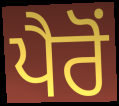
ਪੈਰੋਂ